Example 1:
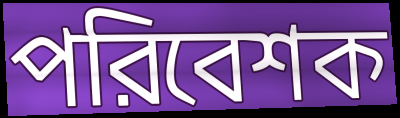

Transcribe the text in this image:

পরিবেশক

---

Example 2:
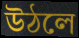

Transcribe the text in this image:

উঠলে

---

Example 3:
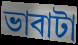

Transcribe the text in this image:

ভাবাটা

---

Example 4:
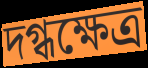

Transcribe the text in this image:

দগ্ধক্ষেত্র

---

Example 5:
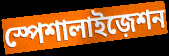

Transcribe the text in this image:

স্পেশালাইজ়েশন